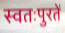
स्वतःपुरतें